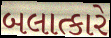
બલાત્કારે